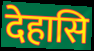
देहासि